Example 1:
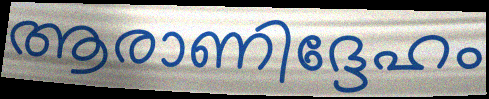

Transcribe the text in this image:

ആരാണിദ്ദേഹം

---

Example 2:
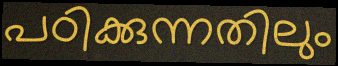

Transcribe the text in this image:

പഠിക്കുന്നതിലും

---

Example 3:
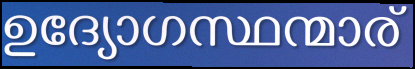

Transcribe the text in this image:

ഉദ്യോഗസ്ഥന്മാര്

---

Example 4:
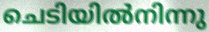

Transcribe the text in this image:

ചെടിയിൽനിന്നു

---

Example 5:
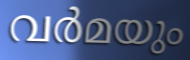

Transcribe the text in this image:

വർമയും